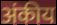
अंकीय